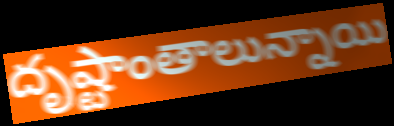
దృష్టాంతాలున్నాయి